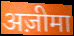
अज़ीमा